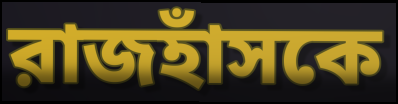
রাজহাঁসকে